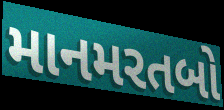
માનમરતબો